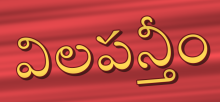
విలపన్తీం